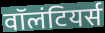
वॉलंटियर्स